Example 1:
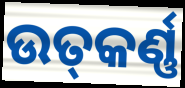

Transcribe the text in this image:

ଉତ୍‍କର୍ଣ୍ଣ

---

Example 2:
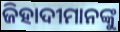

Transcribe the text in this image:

ଜିହାଦୀମାନଙ୍କୁ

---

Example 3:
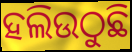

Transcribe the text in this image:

ହଲିଉଠୁଛି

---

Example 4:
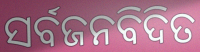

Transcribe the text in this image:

ସର୍ବଜନବିଦିତ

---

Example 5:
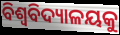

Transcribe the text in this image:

ବିଶ୍ବବିଦ୍ୟାଳୟକୁ